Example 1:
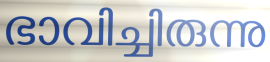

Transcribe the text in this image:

ഭാവിച്ചിരുന്നു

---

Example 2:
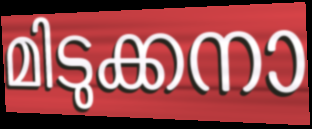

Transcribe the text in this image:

മിടുക്കനാ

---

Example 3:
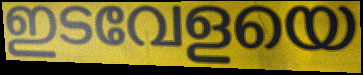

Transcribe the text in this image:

ഇടവേളയെ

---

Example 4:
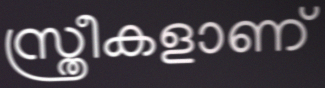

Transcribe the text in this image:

സ്ത്രീകളാണ്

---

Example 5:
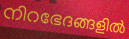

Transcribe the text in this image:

നിറഭേദങ്ങളിൽ